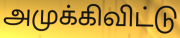
அமுக்கிவிட்டு